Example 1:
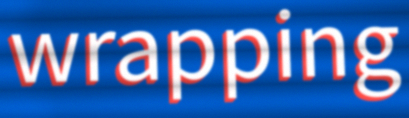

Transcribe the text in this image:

wrapping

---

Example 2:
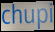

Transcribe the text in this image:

chupi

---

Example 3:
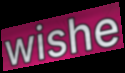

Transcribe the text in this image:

wishe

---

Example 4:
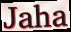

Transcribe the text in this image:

Jaha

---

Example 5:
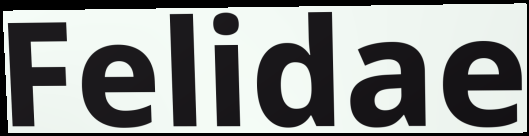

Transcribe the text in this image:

Felidae